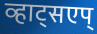
व्हाट्सएप्